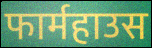
फार्महाउस